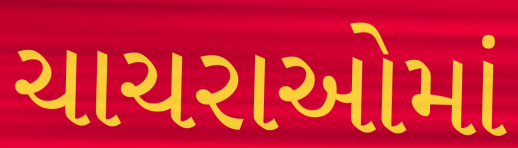
ચાચરાઓમાં